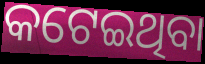
କଟେଇଥିବା